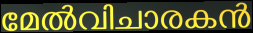
മേൽവിചാരകൻ